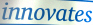
innovates